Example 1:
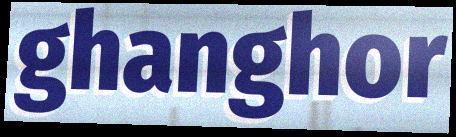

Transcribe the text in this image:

ghanghor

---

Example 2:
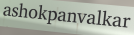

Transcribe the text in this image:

ashokpanvalkar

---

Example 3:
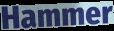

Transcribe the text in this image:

Hammer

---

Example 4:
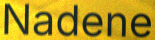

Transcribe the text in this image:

Nadene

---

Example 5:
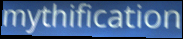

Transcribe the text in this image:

mythification